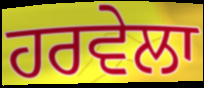
ਹਰਵੇਲਾ